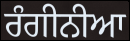
ਰੰਗੀਨੀਆ